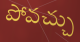
పోవచ్చు